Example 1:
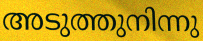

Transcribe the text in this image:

അടുത്തുനിന്നു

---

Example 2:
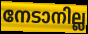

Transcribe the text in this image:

നേടാനില്ല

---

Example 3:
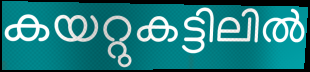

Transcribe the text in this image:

കയറ്റുകട്ടിലിൽ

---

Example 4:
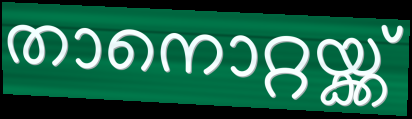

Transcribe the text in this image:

താനൊറ്റയ്ക്ക്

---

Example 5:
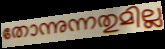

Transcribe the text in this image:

തോന്നുന്നതുമില്ല